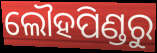
ଲୌହପିଣ୍ଡରୁ